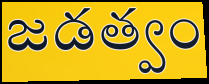
జడత్వం